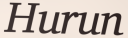
Hurun